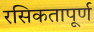
रसिकतापूर्ण